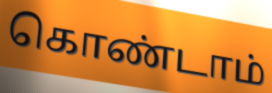
கொண்டாம்